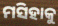
ମସିହାକୁ